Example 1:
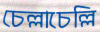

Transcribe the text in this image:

চেল্লাচেল্লি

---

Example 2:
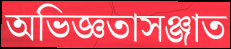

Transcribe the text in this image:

অভিজ্ঞতাসঞ্জাত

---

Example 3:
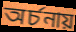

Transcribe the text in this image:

অর্চনায়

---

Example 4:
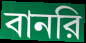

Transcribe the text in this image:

বানরি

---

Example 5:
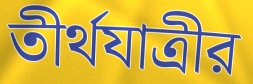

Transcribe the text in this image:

তীর্থযাত্রীর